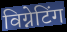
विग्नेटिंग